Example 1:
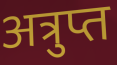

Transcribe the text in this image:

अत्रुप्त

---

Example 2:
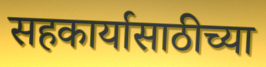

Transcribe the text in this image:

सहकार्यासाठीच्या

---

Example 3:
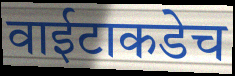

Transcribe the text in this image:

वाईटाकडेच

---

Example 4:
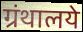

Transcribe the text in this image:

ग्रंथालये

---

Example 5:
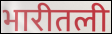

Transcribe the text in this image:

भारीतली